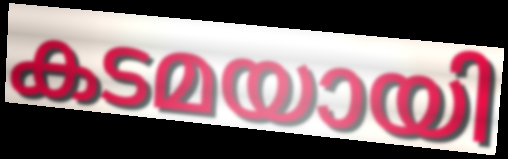
കടമയായി